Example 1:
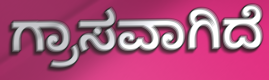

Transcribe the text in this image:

ಗ್ರಾಸವಾಗಿದೆ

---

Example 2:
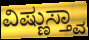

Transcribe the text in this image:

ವಿಷ್ಣುಸ್ತ್ವಾ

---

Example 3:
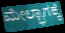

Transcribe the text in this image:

ಮೇಲ್ಭಾಗಕ್ಕೆ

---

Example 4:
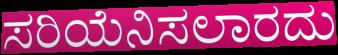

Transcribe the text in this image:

ಸರಿಯೆನಿಸಲಾರದು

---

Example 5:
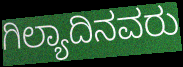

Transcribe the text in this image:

ಗಿಲ್ಯಾದಿನವರು